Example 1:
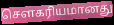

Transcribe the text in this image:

சௌகரியமானது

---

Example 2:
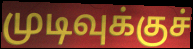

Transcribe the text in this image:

முடிவுக்குச்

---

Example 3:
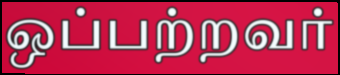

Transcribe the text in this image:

ஒப்பற்றவர்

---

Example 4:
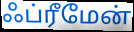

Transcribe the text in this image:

ஃப்ரீமேன்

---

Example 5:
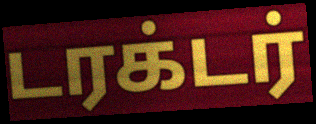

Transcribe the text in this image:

டரக்டர்